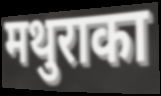
मथुराका